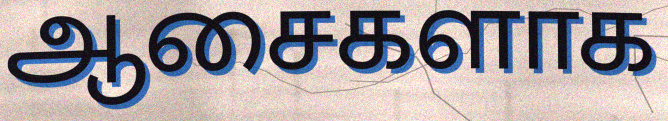
ஆசைகளாக